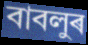
বাবলুৰ